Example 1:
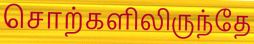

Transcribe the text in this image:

சொற்களிலிருந்தே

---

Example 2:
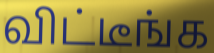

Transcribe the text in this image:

விட்டீங்க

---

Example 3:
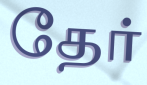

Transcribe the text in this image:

தேர்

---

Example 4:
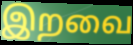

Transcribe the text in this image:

இறவை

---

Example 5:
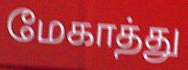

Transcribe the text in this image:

மேகாத்து